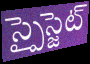
స్పైస్జెట్